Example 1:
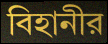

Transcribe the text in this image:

বিহানীর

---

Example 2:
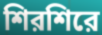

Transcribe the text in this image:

শিরশিরে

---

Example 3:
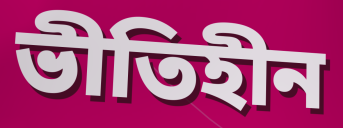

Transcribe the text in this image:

ভীতিহীন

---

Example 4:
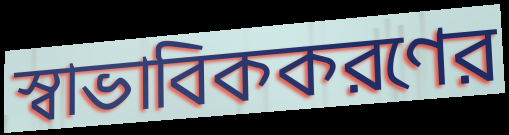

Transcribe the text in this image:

স্বাভাবিককরণের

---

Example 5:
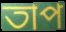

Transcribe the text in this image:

তাপ